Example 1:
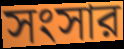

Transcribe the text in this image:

সংসার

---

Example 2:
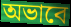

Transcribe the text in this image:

অভাবে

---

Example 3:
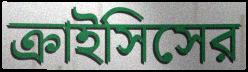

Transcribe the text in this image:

ক্রাইসিসের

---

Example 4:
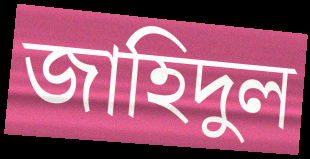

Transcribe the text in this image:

জাহিদুল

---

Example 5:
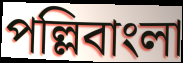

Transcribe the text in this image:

পল্লিবাংলা